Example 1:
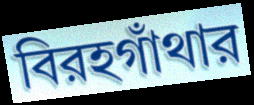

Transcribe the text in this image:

বিরহগাঁথার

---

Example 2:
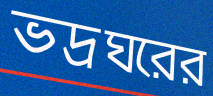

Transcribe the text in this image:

ভদ্রঘরের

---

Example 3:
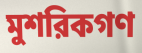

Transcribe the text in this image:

মুশরিকগণ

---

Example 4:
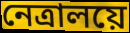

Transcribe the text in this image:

নেত্রালয়ে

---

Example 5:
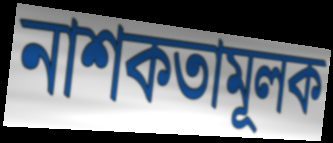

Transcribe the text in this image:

নাশকতামূলক